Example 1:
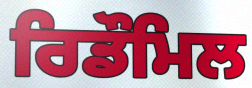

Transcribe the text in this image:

ਰਿਡੌਮਿਲ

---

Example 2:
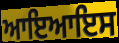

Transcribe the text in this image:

ਆਇਆਇਸ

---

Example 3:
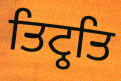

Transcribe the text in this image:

ਤਿਟ੍ਠਤਿ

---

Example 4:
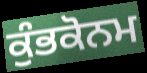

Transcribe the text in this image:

ਕੁੰਭਕੋਨਮ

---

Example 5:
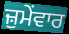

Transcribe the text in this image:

ਜ਼ੁਮੇਂਵਾਰ